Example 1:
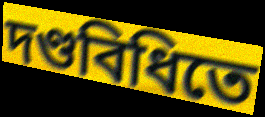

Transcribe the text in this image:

দণ্ডবিধিতে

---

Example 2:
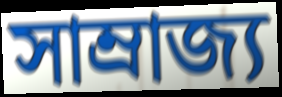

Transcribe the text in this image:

সাম্রাজ্য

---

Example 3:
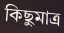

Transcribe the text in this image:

কিছুমাত্র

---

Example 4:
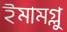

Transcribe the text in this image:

ইমামগ্লু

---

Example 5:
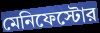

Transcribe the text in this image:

মেনিফেস্টোর